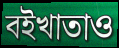
বইখাতাও